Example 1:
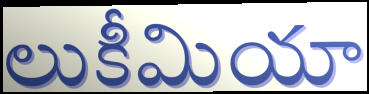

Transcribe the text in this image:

లుకీమియా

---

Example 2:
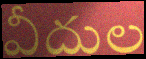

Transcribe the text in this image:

వీదుల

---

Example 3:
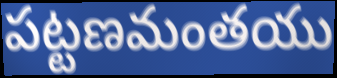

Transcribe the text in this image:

పట్టణమంతయు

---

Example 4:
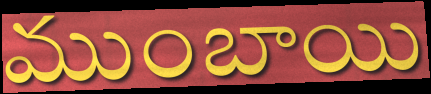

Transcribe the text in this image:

ముంబాయి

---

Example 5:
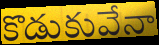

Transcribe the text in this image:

కొడుకువేనా